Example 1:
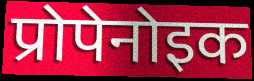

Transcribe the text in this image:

प्रोपेनोइक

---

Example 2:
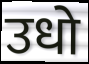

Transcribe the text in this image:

उधो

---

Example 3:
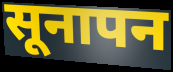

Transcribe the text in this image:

सूनापन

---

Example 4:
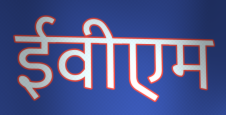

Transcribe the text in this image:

ईवीएम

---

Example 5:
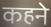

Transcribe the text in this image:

कहने